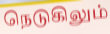
நெடுகிலும்